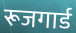
रूजगार्ड